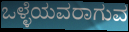
ಒಳ್ಳೆಯವರಾಗುವ